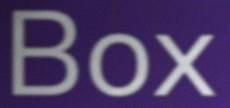
Box